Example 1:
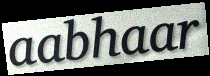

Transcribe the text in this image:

aabhaar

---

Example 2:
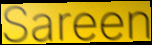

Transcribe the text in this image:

Sareen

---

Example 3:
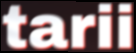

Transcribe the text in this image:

tarii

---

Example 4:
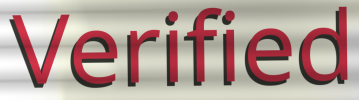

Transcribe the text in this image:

Verified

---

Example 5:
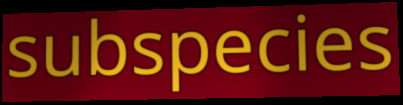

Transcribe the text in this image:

subspecies